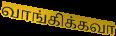
வாங்கிக்கவா